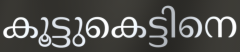
കൂട്ടുകെട്ടിനെ